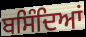
ਬਸਿੰਦਿਆਂ